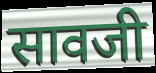
सावजी